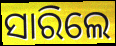
ସାରିଲେ